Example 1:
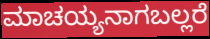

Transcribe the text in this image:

ಮಾಚಯ್ಯನಾಗಬಲ್ಲರೆ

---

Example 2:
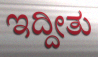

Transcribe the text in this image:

ಇದ್ದೀತು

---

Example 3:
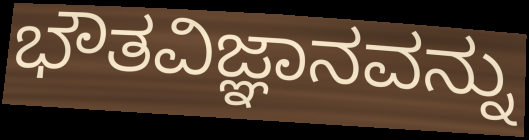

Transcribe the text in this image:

ಭೌತವಿಜ್ಞಾನವನ್ನು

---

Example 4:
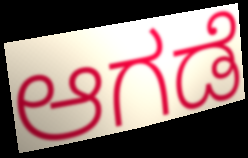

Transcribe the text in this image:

ಆಗಡೆ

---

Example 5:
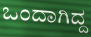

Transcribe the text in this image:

ಒಂದಾಗಿದ್ದ